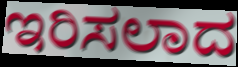
ಇರಿಸಲಾದ